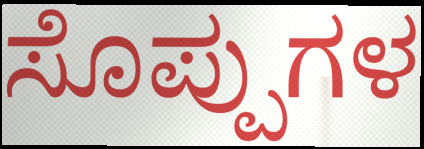
ಸೊಪ್ಪುಗಳ